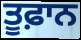
ਤੂਫ਼ਾਨ